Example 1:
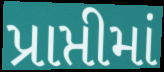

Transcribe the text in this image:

પ્રાપ્તીમાં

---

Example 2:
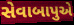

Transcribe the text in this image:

સેવાબાપુએ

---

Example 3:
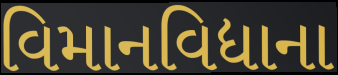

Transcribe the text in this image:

વિમાનવિદ્યાના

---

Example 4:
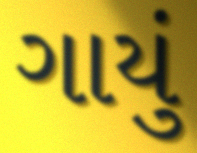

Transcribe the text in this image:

ગાયું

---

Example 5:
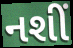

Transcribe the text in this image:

નશીં